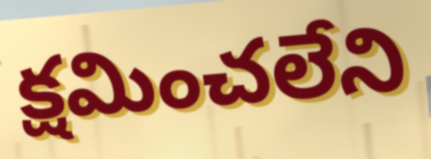
క్షమించలేని